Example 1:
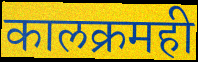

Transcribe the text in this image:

कालक्रमही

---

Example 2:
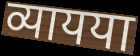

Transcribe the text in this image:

व्यायया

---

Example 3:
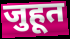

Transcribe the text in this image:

जुहूत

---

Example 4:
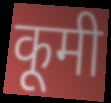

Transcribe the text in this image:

कूमी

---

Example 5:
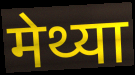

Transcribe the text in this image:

मेथ्या